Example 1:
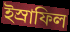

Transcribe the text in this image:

ইস্রাফিল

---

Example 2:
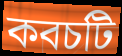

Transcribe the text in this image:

কবচটি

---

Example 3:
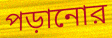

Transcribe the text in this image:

পড়ানোর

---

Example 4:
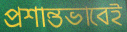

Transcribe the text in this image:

প্রশান্তভাবেই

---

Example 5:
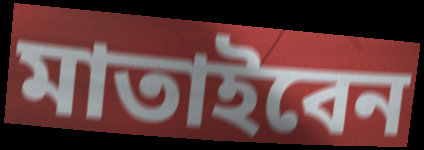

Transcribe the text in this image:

মাতাইবেন